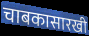
चाबकासारखी